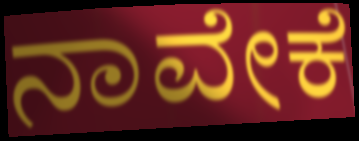
ನಾವೇಕೆ